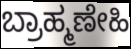
ಬ್ರಾಹ್ಮಣೇಹಿ